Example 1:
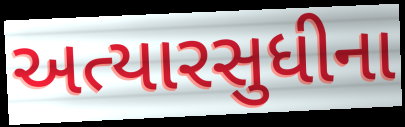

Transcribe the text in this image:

અત્યારસુધીના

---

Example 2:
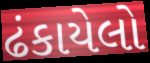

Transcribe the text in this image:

ઢંકાયેલો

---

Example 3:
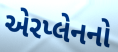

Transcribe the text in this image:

એરપ્લેનનો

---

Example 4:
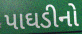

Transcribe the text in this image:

પાઘડીનો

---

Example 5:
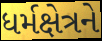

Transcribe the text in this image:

ધર્મક્ષેત્રને